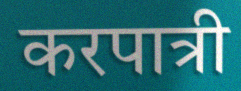
करपात्री